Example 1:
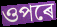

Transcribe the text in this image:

ওপৰে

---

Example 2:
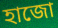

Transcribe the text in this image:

হাজো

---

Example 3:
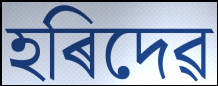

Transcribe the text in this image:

হৰিদেৱ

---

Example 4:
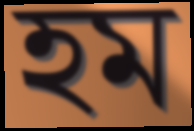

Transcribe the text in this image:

হম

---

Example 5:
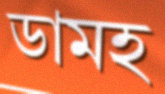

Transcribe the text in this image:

ডামহ